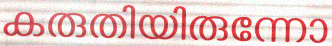
കരുതിയിരുന്നോ